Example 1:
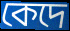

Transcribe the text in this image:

কেদে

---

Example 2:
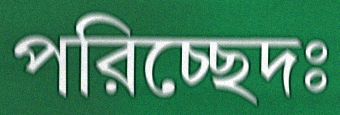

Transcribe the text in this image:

পরিচ্ছেদঃ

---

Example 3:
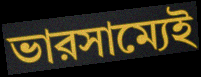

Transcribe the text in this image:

ভারসাম্যেই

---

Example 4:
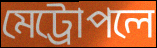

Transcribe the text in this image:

মেট্রোপলে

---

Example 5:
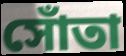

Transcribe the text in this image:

সোঁতা